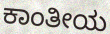
ಕಾಂತೀಯ